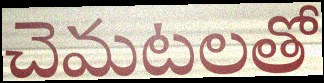
చెమటలతో